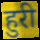
हुरी